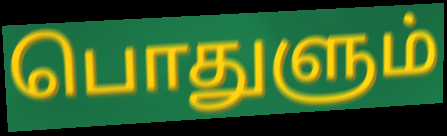
பொதுளும்